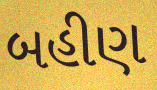
બહીણ